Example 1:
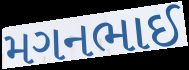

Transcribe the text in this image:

મગનભાઈ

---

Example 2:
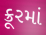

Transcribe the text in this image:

ક્રૂરમાં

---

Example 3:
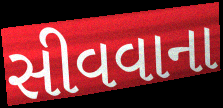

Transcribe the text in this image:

સીવવાના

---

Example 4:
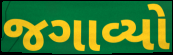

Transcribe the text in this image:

જગાવ્યો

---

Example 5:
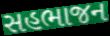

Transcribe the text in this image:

સહભાજન